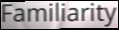
Familiarity